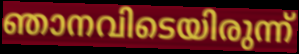
ഞാനവിടെയിരുന്ന്